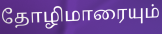
தோழிமாரையும்